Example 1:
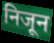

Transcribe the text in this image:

निजून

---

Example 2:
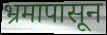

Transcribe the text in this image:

भ्रमापासून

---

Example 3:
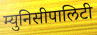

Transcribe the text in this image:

म्युनिसीपालिटी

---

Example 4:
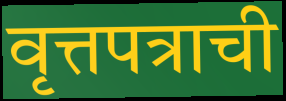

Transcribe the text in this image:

वृत्तपत्राची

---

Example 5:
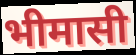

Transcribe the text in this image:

भीमासी